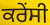
ਕਰੇੰਸੀ